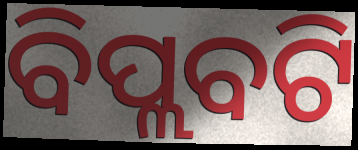
ବିପ୍ଲବଟି